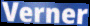
Verner